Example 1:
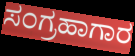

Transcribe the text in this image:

ಸಂಗ್ರಹಾಗಾರ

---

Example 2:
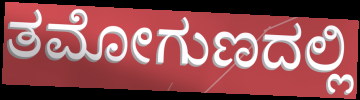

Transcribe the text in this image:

ತಮೋಗುಣದಲ್ಲಿ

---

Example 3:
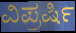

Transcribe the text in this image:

ವಿಪ್ರರ್ಷಿ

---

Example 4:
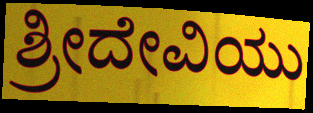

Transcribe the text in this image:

ಶ್ರೀದೇವಿಯು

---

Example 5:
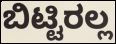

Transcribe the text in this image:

ಬಿಟ್ಟಿರಲ್ಲ